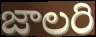
జాలరి